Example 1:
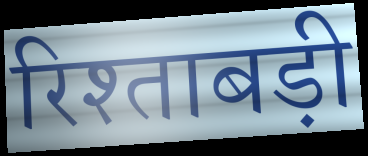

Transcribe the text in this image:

रिश्ताबड़ी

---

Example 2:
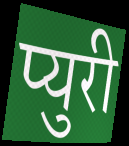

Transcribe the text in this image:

प्युरी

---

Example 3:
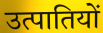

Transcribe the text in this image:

उत्पातियों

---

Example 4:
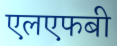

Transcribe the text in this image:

एलएफबी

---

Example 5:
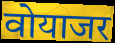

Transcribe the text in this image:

वोयाजर